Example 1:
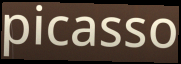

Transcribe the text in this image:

picasso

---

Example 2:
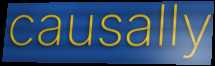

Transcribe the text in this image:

causally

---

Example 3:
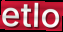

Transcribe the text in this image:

etlo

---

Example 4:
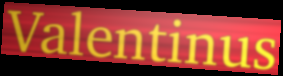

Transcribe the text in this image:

Valentinus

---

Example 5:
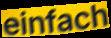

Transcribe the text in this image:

einfach